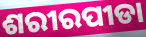
ଶରୀରପୀଡା